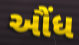
ઔંધ